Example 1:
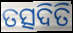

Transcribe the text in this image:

ତତ୍ସଦିତି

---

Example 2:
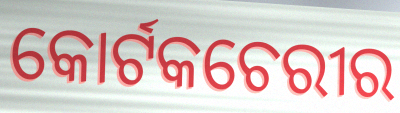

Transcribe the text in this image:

କୋର୍ଟକଚେରୀର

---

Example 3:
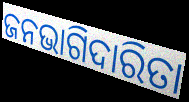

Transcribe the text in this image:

ଜନଭାଗିଦାରିତା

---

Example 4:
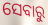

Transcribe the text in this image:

ସେବାରୁ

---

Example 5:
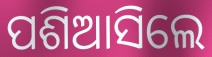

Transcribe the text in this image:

ପଶିଆସିଲେ